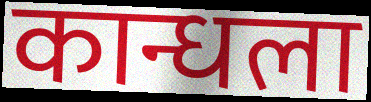
कान्धला